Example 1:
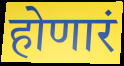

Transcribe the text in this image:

होणारं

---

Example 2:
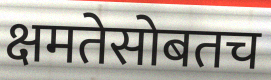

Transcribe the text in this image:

क्षमतेसोबतच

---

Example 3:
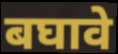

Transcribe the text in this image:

बघावे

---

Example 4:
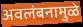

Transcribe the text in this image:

अवलंबनामुळे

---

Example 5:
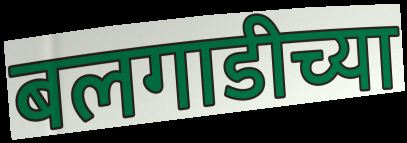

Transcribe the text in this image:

बलगाडीच्या